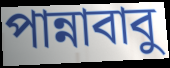
পান্নাবাবু